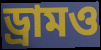
ড্রামও